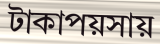
টাকাপয়সায়